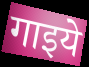
गाइये